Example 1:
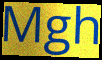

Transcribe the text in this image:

Mgh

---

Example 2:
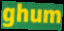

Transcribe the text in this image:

ghum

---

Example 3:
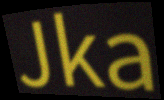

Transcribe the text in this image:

Jka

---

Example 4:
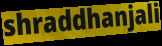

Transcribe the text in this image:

shraddhanjali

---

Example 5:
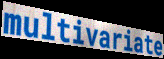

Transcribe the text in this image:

multivariate